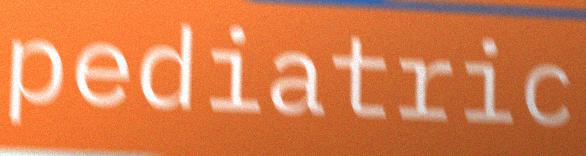
pediatric